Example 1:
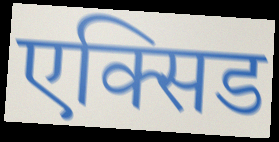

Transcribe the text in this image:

एक्सिड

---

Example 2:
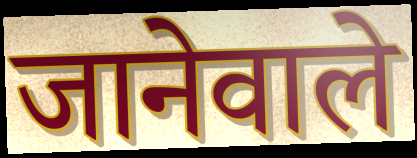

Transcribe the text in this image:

जानेवाले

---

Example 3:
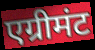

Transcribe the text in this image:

एग्रीमंट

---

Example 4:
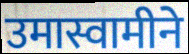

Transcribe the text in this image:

उमास्वामीने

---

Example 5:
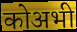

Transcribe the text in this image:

कोअभी